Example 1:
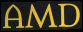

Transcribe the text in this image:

AMD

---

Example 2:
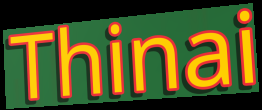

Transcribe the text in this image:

Thinai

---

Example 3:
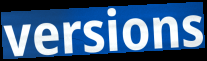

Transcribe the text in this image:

versions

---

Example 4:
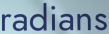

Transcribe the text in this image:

radians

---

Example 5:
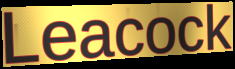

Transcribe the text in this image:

Leacock